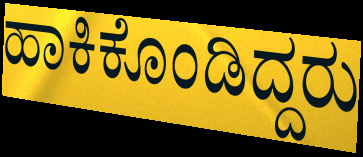
ಹಾಕಿಕೊಂಡಿದ್ದರು